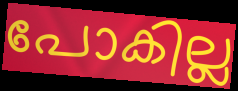
പോകില്ല